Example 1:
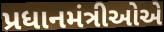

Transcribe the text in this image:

પ્રધાનમંત્રીઓએ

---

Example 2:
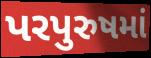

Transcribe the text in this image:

પરપુરુષમાં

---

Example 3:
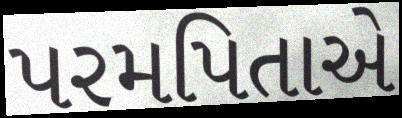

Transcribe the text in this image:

પરમપિતાએ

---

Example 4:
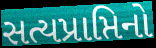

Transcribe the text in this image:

સત્યપ્રાપ્તિનો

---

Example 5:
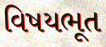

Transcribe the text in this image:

વિષયભૂત